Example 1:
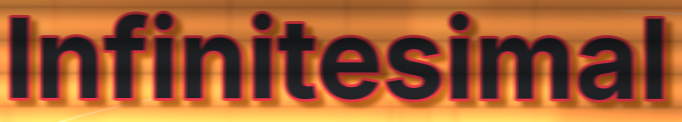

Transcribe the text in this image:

Infinitesimal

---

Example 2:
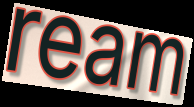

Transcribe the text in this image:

ream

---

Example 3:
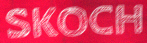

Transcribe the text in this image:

SKOCH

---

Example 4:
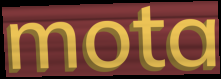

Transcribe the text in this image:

mota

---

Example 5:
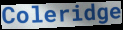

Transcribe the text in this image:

Coleridge